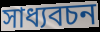
সাধ্যবচন